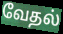
வேதல்